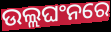
ଉଲ୍ଲଘଂନରେ